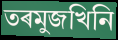
তৰমুজখিনি